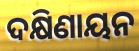
ଦକ୍ଷିଣାୟନ